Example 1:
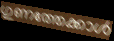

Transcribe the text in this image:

ഗുണത്തേക്കാൾ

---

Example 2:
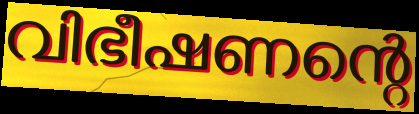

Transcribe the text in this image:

വിഭീഷണന്റെ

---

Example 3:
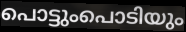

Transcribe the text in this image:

പൊട്ടുംപൊടിയും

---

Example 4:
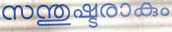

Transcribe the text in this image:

സന്തുഷ്ടരാകും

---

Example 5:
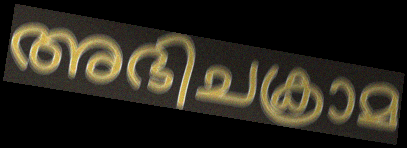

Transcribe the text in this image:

അഭിചക്രാമ